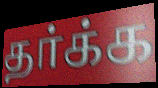
தர்க்க